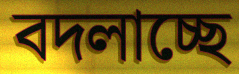
বদলাচ্ছে